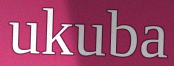
ukuba